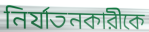
নির্যাতনকারীকে